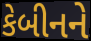
કેબીનને